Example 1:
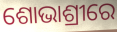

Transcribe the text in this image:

ଶୋଭାଶ୍ରୀରେ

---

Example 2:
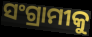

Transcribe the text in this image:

ସଂଗ୍ରାମୀକୁ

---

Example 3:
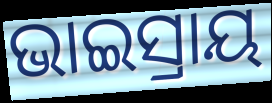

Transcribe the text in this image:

ଭାଇସ୍ରାୟ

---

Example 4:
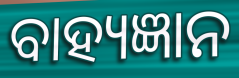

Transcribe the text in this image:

ବାହ୍ୟଜ୍ଞାନ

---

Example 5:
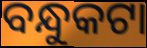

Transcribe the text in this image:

ବନ୍ଧୁକଟା